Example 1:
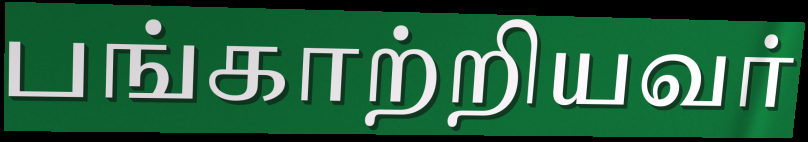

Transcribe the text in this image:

பங்காற்றியவர்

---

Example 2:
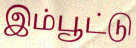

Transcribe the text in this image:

இம்பூட்டு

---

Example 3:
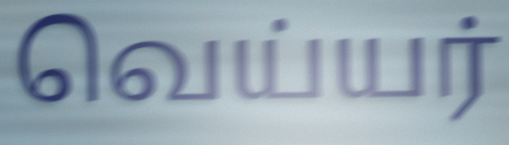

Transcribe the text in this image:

வெய்யர்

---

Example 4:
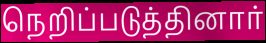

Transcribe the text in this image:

நெறிப்படுத்தினார்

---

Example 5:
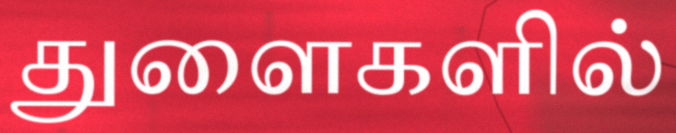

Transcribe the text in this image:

துளைகளில்